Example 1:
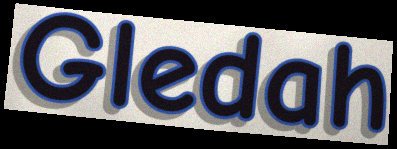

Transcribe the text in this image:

Gledah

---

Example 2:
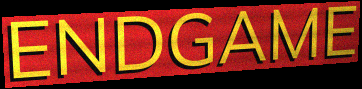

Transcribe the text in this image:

ENDGAME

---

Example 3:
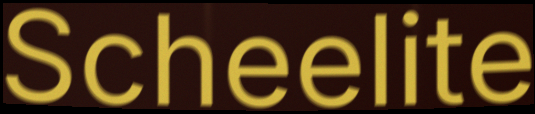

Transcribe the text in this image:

Scheelite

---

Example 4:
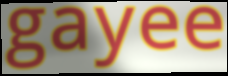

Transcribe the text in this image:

gayee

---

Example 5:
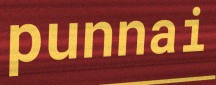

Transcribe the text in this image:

punnai